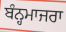
ਬੰਨ੍ਹਮਾਜਰਾ